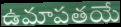
ఉమాపతయే